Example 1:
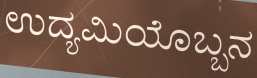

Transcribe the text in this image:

ಉದ್ಯಮಿಯೊಬ್ಬನ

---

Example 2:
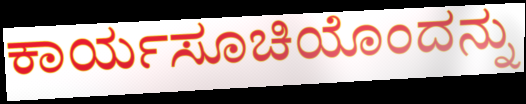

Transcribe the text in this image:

ಕಾರ್ಯಸೂಚಿಯೊಂದನ್ನು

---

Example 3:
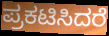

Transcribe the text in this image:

ಪ್ರಕಟಿಸಿದರೆ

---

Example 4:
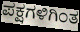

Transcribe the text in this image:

ಪಕ್ಷಗಳಿಗಿಂತ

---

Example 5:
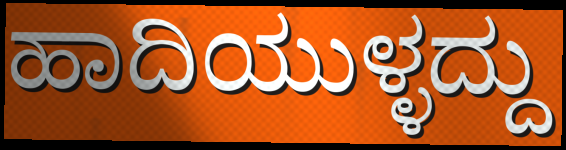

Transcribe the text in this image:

ಹಾದಿಯುಳ್ಳದ್ದು